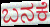
ಬನಕೆ